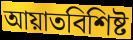
আয়াতবিশিষ্ট